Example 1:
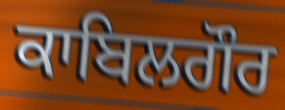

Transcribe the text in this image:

ਕਾਬਿਲਗੌਰ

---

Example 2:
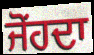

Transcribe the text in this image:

ਜੋਂਹਦਾ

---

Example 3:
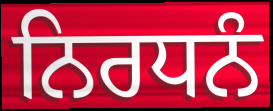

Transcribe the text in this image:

ਨਿਰਧਨੰ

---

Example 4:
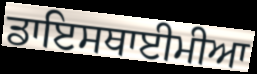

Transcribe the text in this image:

ਡਾਇਸਥਾਈਮੀਆ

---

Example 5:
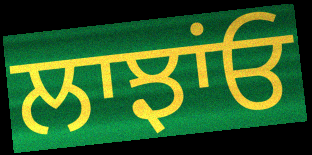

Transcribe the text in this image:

ਲਾਝਾਂਓ